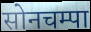
सोनचम्पा